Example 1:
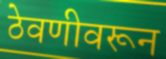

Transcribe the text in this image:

ठेवणीवरून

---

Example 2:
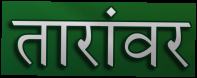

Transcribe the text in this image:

तारांवर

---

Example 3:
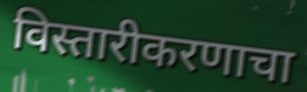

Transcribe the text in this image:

विस्तारीकरणाचा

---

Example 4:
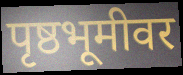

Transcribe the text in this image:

पृष्ठभूमीवर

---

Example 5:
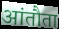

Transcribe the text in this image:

आंतौता